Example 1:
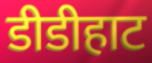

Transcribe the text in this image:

डीडीहाट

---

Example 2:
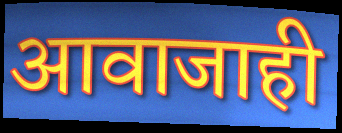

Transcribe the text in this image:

आवाजाही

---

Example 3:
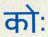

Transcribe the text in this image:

कोः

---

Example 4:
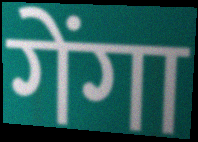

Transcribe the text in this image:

गेंगा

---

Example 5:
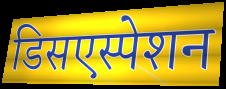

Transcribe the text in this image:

डिसएस्पेशन